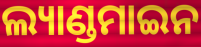
ଲ୍ୟାଣ୍ଡମାଇନ